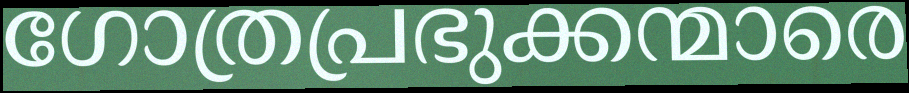
ഗോത്രപ്രഭുക്കന്മാരെ